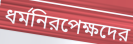
ধর্মনিরপেক্ষদের